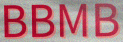
BBMB